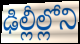
ఢిల్లీల్లోని